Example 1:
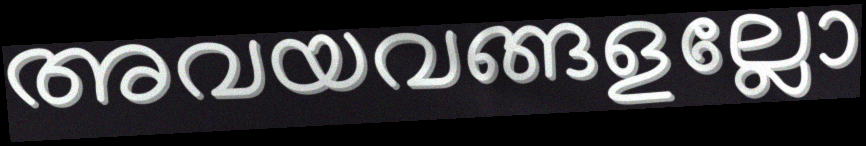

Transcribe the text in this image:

അവയവങ്ങളല്ലോ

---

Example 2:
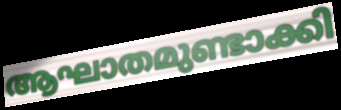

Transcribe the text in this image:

ആഘാതമുണ്ടാക്കി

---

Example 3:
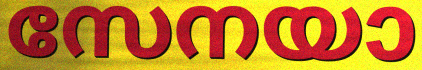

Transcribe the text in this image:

സേനയാ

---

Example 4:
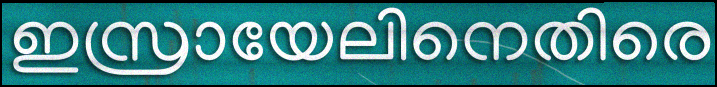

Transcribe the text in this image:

ഇസ്രായേലിനെതിരെ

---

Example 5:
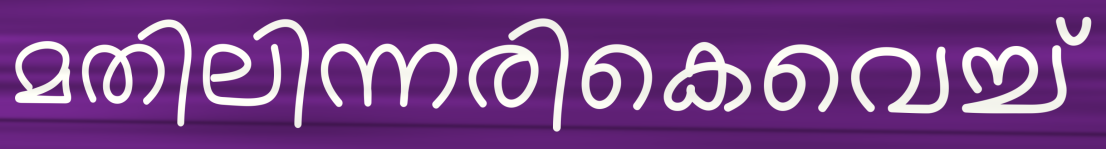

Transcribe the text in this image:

മതിലിന്നരികെവെച്ച്